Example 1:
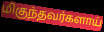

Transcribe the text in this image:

மிகுந்தவர்களாய்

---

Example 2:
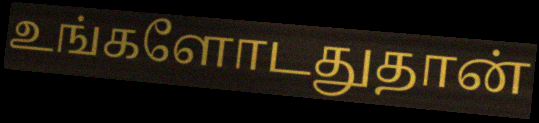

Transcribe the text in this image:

உங்களோடதுதான்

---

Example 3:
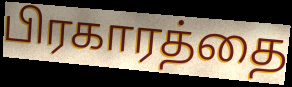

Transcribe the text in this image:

பிரகாரத்தை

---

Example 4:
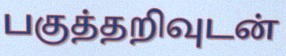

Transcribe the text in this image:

பகுத்தறிவுடன்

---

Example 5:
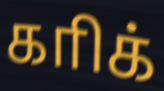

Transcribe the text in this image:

கரிக்